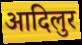
आदिलुर